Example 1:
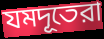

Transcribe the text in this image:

যমদূতেরা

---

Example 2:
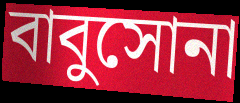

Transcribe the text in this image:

বাবুসোনা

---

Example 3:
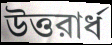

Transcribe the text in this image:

উত্তরার্ধ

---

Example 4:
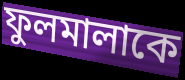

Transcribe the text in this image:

ফুলমালাকে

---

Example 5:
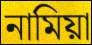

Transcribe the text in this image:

নামিয়া